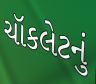
ચૉકલેટનું